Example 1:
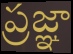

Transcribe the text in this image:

ప్రజ్ఞా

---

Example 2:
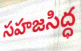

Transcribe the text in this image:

సహజసిద్ధ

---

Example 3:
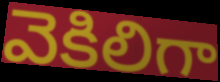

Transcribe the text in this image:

వెకిలిగా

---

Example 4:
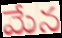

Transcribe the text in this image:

మేన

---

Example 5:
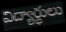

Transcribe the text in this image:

విద్యార్థులు